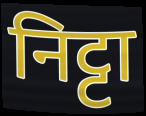
निट्टा